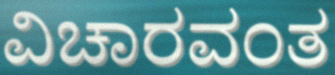
ವಿಚಾರವಂತ